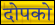
दोपको